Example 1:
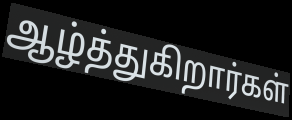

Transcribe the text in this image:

ஆழ்த்துகிறார்கள்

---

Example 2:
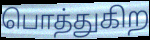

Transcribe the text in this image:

பொத்துகிற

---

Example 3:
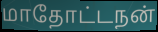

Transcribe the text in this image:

மாதோட்டநன்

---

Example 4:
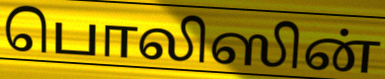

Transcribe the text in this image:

பொலிஸின்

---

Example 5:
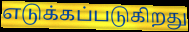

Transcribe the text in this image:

எடுக்கப்படுகிறது